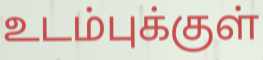
உடம்புக்குள்